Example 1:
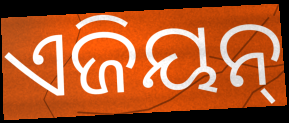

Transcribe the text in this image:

ଏଜିୟନ୍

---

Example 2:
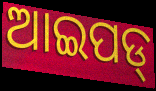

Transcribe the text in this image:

ଆଇପଡ୍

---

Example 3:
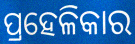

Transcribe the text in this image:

ପ୍ରହେଳିକାର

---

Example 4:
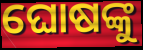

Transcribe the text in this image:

ଘୋଷଙ୍କୁ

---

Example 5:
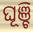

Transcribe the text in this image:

ଘୂଞ୍ଚି